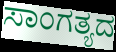
ಸಾಂಗತ್ಯದ